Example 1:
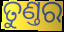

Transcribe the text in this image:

ତୁଣ୍ତର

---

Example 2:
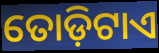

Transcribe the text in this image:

ତୋଡ଼ିଟାଏ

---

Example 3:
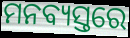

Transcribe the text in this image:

ମନବ୍ୟସ୍ତରେ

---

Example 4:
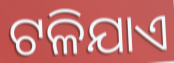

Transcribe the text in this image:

ଟଳିଯାଏ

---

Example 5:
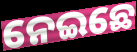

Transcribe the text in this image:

ନେଇଛେ